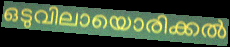
ഒടുവിലായൊരിക്കൽ